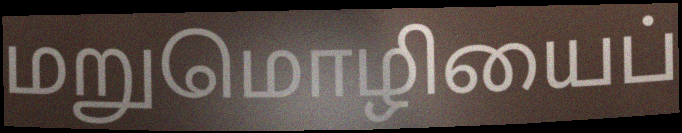
மறுமொழியைப்